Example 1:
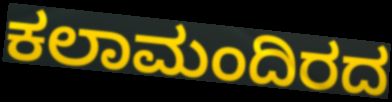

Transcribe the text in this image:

ಕಲಾಮಂದಿರದ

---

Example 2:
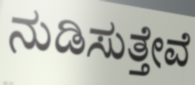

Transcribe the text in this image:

ನುಡಿಸುತ್ತೇವೆ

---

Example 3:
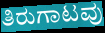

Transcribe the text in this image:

ತಿರುಗಾಟವು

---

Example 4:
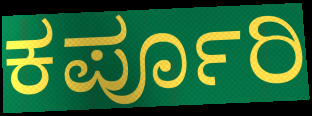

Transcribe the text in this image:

ಕರ್ಪೂರಿ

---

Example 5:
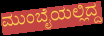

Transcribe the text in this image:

ಮುಂಬೈಯಲ್ಲಿದ್ದ